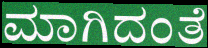
ಮಾಗಿದಂತೆ